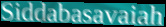
Siddabasavaiah